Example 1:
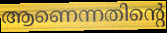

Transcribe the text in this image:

ആണെന്നതിന്റെ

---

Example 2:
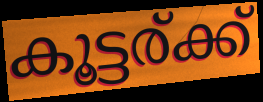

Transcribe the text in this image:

കൂട്ടര്ക്ക്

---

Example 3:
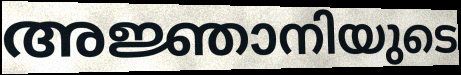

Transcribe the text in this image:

അജ്ഞാനിയുടെ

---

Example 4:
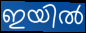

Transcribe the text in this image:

ഇയിൽ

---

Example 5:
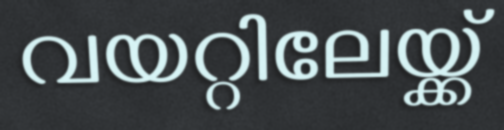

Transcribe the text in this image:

വയറ്റിലേയ്ക്ക്